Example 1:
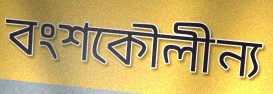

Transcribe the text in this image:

বংশকৌলীন্য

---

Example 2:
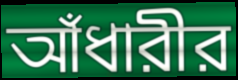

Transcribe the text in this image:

আঁধারীর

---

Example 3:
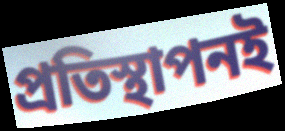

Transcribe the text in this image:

প্রতিস্থাপনই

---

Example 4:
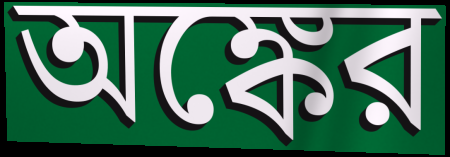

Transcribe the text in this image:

অঙ্কের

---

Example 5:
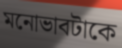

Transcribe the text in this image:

মনোভাবটাকে